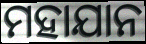
ମହାଯାନ